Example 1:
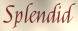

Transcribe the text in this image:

Splendid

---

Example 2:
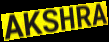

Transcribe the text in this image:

AKSHRA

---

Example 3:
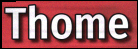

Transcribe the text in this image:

Thome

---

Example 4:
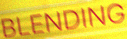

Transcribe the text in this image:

BLENDING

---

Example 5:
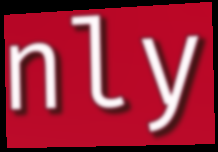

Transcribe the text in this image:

nly